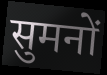
सुमनों